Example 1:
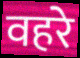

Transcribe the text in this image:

वहरे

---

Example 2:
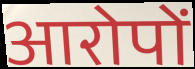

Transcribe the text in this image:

आरोपों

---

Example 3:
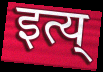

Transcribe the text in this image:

इत्य्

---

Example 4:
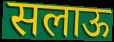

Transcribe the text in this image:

सलाऊ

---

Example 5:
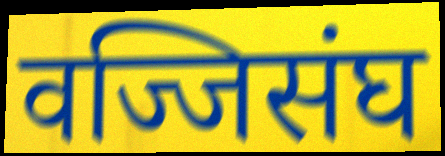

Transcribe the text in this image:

वज्जिसंघ